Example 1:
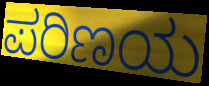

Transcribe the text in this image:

ಪರಿಣಯ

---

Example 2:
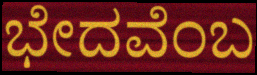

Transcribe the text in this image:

ಭೇದವೆಂಬ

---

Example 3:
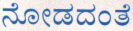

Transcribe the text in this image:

ನೋಡದಂತೆ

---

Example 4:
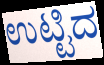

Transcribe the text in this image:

ಉಟ್ಟಿದ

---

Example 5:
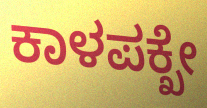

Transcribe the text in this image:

ಕಾಳಪಕ್ಖೇ